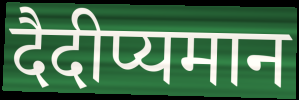
दैदीप्यमान